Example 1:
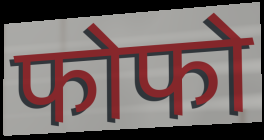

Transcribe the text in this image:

फोफो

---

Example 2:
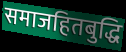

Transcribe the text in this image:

समाजहितबुद्धि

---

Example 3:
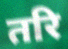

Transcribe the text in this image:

तरि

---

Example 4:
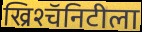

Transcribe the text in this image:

ख्रिश्चॅनिटीला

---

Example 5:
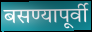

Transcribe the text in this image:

बसण्यापूर्वी